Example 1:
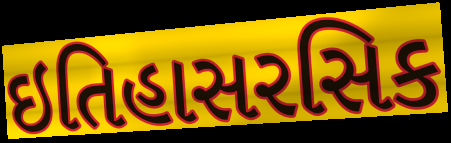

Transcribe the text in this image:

ઇતિહાસરસિક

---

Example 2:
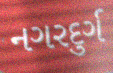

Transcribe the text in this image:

નગરદુર્ગ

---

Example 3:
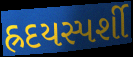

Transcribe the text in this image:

હ્રદયસ્પર્શી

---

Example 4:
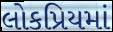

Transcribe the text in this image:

લોકપ્રિયમાં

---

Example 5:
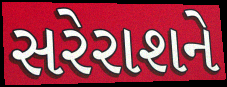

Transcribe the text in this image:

સરેરાશને